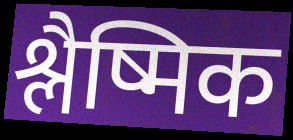
श्लैष्मिक